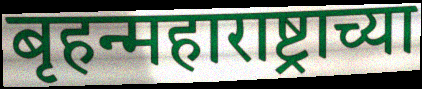
बृहन्महाराष्ट्राच्या